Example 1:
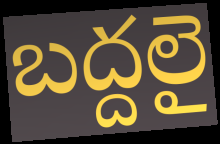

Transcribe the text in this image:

బద్దలై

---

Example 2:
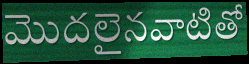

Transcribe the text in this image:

మొదలైనవాటితో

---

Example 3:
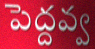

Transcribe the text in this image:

పెద్దవ్వ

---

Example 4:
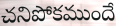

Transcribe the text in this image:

చనిపోకముందే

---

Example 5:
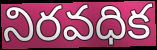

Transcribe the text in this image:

నిరవధిక